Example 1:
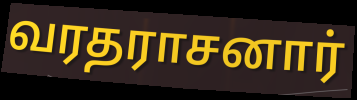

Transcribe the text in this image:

வரதராசனார்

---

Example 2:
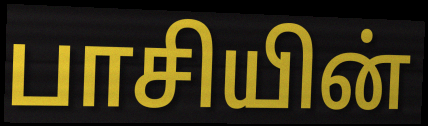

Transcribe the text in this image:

பாசியின்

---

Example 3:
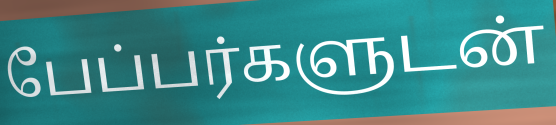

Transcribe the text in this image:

பேப்பர்களுடன்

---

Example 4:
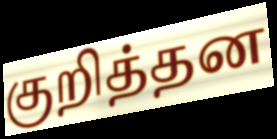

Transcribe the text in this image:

குறித்தன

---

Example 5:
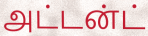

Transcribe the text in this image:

அட்டன்ட்